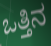
ಒತ್ತಿನ